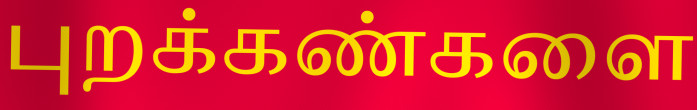
புறக்கண்களை